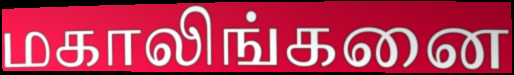
மகாலிங்கனை